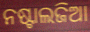
ନଷ୍ଟାଲଜିଆ